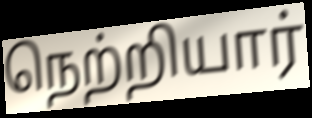
நெற்றியார்